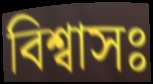
বিশ্বাসঃ